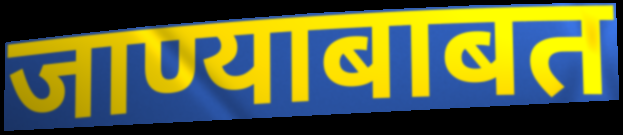
जाण्याबाबत